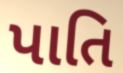
પાતિ